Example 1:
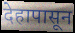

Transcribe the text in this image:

देहापासून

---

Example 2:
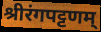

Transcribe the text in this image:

श्रीरंगपट्टणम्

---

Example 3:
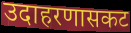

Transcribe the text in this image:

उदाहरणासकट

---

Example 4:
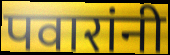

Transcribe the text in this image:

पवारांनी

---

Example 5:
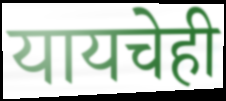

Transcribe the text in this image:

यायचेही